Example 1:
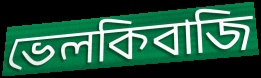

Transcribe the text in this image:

ভেলকিবাজি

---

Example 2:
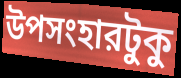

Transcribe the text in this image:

উপসংহারটুকু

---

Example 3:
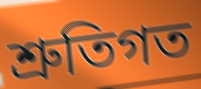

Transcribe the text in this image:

শ্রুতিগত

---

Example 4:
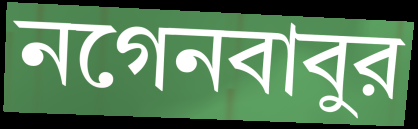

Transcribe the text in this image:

নগেনবাবুর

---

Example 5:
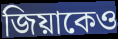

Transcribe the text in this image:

জিয়াকেও